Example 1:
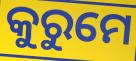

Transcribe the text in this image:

କୁରୁମେ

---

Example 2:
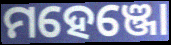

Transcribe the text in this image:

ମହେଞ୍ଜୋ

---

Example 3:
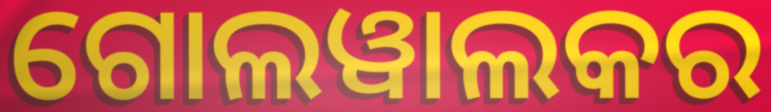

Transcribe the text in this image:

ଗୋଲୱାଲକର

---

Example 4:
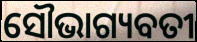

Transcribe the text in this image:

ସୌଭାଗ୍ୟବତୀ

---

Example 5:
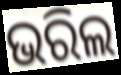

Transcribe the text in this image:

ଭରିଲ